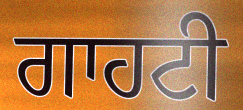
ਗਾਹਟੀ